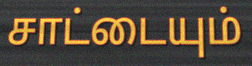
சாட்டையும்